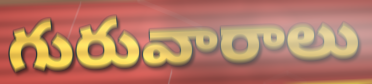
గురువారాలు